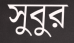
সুবুর